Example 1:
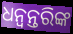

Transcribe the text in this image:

ଧନ୍ୱନ୍ତରିଙ୍କ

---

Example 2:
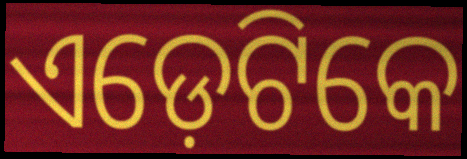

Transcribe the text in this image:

ଏଡ଼େଟିକେ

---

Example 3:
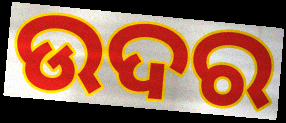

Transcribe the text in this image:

ଉଦର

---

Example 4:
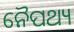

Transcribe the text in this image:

ନୈପଥ୍ୟ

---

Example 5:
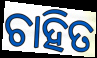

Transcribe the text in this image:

ଚାହିତ